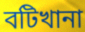
বটিখানা